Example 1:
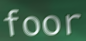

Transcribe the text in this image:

foor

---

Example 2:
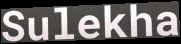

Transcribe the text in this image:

Sulekha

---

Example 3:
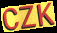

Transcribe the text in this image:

CZK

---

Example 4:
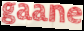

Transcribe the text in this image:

gaane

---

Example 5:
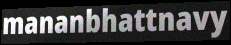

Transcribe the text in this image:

mananbhattnavy